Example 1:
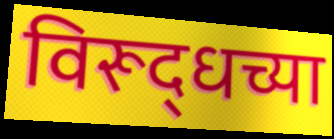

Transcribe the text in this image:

विरूद्धच्या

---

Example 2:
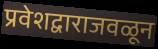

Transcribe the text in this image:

प्रवेशद्वाराजवळून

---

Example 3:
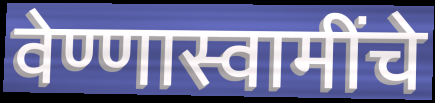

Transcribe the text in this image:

वेण्णास्वामींचे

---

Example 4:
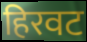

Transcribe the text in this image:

हिरवट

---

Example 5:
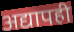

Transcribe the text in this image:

अद्यापही